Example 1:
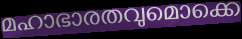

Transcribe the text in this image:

മഹാഭാരതവുമൊക്കെ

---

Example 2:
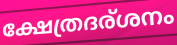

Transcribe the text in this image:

ക്ഷേത്രദര്ശനം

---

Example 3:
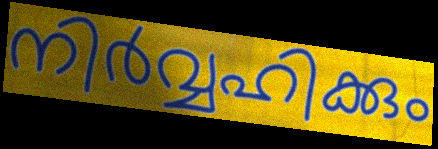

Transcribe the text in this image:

നിർവ്വഹിക്കും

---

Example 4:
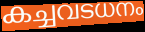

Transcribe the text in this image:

കച്ചവടധനം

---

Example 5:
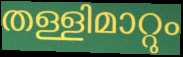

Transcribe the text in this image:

തള്ളിമാറ്റും